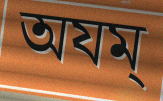
অযম্